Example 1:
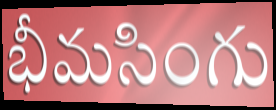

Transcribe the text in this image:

భీమసింగు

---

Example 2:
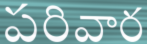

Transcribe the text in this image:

పరివార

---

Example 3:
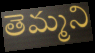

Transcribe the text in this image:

తెమ్మని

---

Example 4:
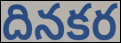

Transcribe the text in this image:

దినకర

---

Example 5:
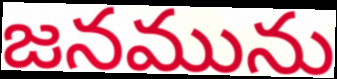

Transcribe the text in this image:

జనమును